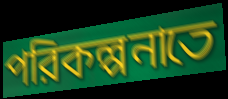
পরিকল্পনাতে